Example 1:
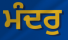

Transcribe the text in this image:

ਮੰਦਰੁ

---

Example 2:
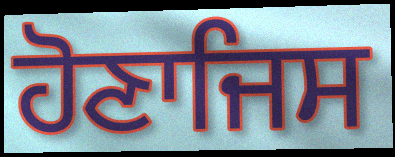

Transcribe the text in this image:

ਹੋਣਾਜਿਸ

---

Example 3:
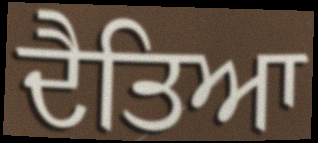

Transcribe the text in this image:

ਦੈਤਿਆ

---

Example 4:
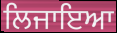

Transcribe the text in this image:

ਲਿਜਾਇਆ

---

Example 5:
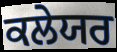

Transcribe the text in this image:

ਕਲੇਯਰ